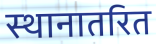
स्थानातरित